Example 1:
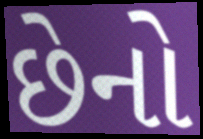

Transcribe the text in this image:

છેનો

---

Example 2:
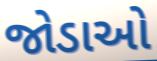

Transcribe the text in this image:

જોડાઓ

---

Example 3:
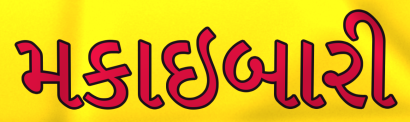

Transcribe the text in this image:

મકાઇબારી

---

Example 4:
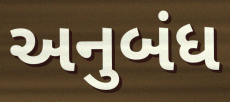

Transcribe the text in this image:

અનુબંધ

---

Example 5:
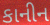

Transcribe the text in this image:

કાનીન